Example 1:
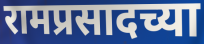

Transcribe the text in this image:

रामप्रसादच्या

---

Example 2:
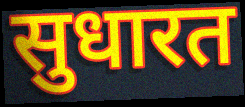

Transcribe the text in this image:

सुधारत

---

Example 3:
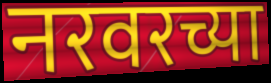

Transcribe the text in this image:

नरवरच्या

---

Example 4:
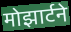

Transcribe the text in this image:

मोझार्टने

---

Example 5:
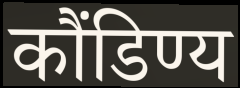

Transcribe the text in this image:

कौंडिण्य